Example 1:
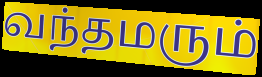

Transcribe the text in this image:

வந்தமரும்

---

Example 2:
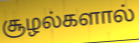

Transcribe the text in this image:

சூழல்களால்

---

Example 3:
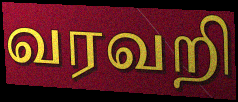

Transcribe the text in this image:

வரவறி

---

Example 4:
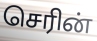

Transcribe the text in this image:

செரின்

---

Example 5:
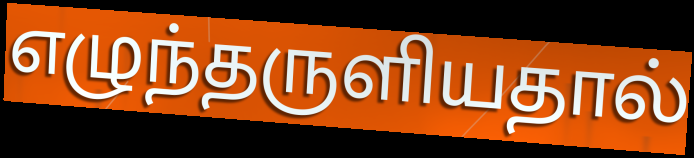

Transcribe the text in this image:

எழுந்தருளியதால்